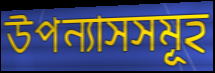
উপন্যাসসমূহ